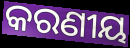
କରଣୀୟ